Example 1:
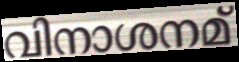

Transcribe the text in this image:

വിനാശനമ്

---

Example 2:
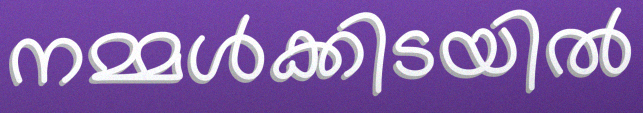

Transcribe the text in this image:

നമ്മൾക്കിടയിൽ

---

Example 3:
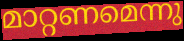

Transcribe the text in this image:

മാറ്റണമെന്നു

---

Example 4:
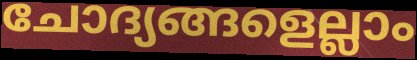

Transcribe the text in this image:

ചോദ്യങ്ങളെല്ലാം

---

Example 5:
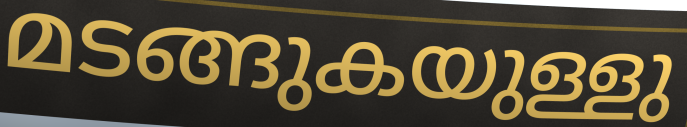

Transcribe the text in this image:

മടങ്ങുകയുള്ളു